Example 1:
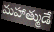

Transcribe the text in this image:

మహాత్ముడే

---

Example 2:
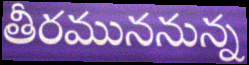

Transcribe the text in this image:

తీరముననున్న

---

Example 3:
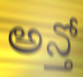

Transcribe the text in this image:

అన్తో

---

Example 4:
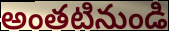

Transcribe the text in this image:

అంతటినుండి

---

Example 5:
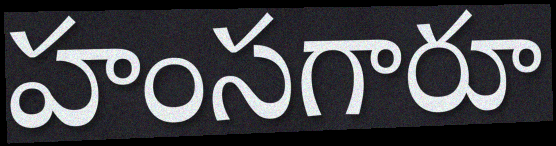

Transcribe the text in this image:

హంసగారూ